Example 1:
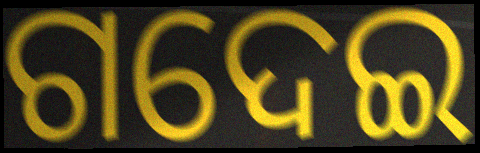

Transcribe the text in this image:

ଗଦେଇ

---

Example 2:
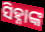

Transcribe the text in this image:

ସିହ୍ନାଙ୍କ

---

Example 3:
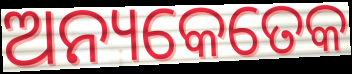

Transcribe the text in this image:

ଅନ୍ୟକେତେକ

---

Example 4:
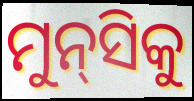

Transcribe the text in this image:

ମୁନ୍‌ସିକୁ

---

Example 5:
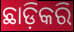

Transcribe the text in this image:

ଛାଡ଼ିକରି